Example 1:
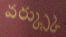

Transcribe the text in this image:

వర్క్స్కు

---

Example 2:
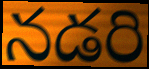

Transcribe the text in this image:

నడరి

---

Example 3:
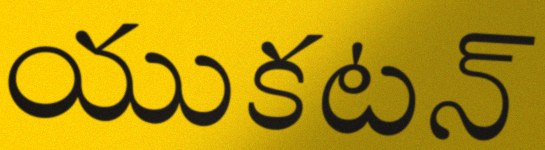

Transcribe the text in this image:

యుకటన్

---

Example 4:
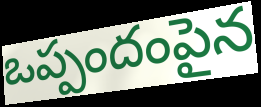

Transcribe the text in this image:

ఒప్పందంపైన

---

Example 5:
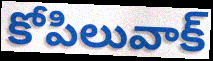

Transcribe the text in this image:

కోపిలువాక్